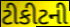
ટીકીટની